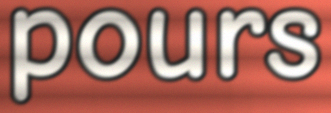
pours